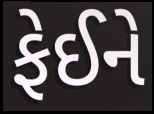
ફેઈને